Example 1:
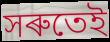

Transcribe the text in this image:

সৰুতেই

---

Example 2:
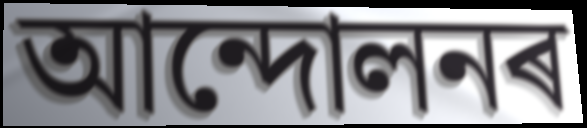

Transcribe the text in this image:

আন্দোলনৰ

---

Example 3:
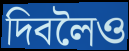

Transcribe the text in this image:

দিবলৈও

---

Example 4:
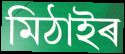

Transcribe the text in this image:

মিঠাইৰ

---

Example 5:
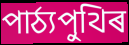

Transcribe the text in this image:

পাঠ্যপুথিৰ